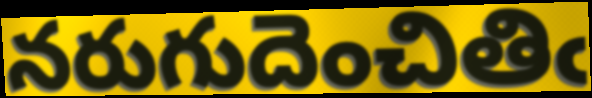
నరుగుదెంచితిఁ